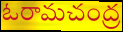
ఓరామచంద్ర